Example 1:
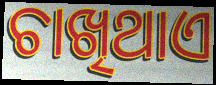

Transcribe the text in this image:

ଚାଖିଥାଏ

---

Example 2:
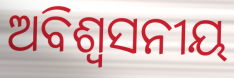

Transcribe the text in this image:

ଅବିଶ୍ବସନୀୟ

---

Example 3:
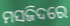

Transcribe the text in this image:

ମସଜିଦରେ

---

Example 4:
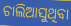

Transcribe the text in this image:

ଚାଲିଆସୁଥିବା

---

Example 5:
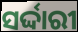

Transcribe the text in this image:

ସର୍ଦ୍ଦାରୀ